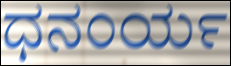
ಧನಂರ್ಯ